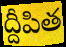
ద్దీపిత